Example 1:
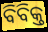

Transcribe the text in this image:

ବିବିକ୍ତ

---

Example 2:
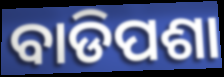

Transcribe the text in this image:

ବାଡିପଶା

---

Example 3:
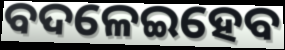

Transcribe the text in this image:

ବଦଳେଇହେବ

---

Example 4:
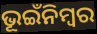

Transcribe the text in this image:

ଭୂଇଁନିମ୍ବର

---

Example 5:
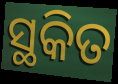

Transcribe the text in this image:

ସ୍ଥକିତ